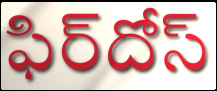
ఫిర్‌దోస్